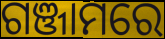
ଗଞ୍ଜାମରେ